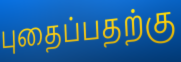
புதைப்பதற்கு